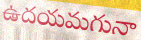
ఉదయమగునా